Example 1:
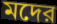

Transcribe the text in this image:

মদের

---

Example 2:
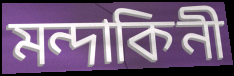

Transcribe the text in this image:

মন্দাকিনী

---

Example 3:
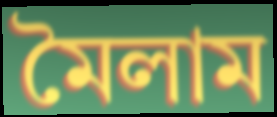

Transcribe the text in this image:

মৈলাম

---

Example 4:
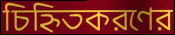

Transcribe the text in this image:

চিহ্নিতকরণের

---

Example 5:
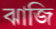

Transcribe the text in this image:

ঝাজি